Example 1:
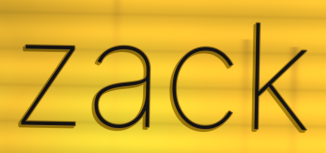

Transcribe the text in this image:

zack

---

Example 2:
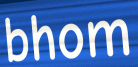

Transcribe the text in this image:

bhom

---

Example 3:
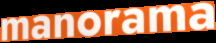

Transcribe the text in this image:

manorama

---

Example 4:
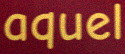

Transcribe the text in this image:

aquel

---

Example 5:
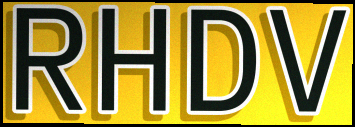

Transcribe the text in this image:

RHDV